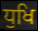
ਧੁਖਿ